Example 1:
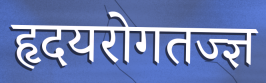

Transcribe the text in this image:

हृदयरोगतज्ज्ञ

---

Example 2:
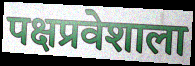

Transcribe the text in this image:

पक्षप्रवेशाला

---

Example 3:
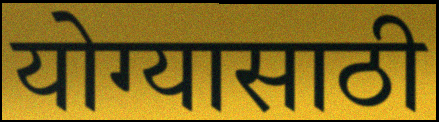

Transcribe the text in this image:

योग्यासाठी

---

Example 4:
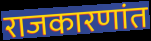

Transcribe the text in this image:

राजकारणांत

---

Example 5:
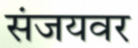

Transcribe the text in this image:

संजयवर